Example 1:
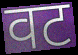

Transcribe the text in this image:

वट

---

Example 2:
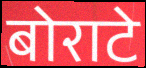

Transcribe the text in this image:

बोराटे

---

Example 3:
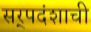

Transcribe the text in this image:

सर्पदंशाची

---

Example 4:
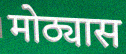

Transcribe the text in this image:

मोठ्यास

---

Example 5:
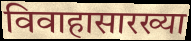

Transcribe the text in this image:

विवाहासारख्या